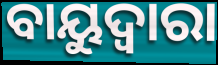
ବାୟୁଦ୍ୱାରା